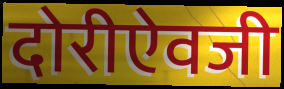
दोरीऐवजी